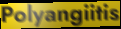
Polyangiitis